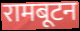
रामबूटन